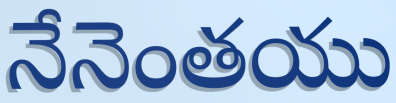
నేనెంతయు